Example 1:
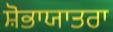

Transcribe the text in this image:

ਸ਼ੋਭਾਯਾਤਰਾ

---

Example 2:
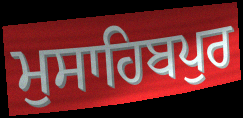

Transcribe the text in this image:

ਮੁਸਾਹਿਬਪੁਰ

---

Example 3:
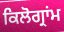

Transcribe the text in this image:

ਕਿਲੋਗ੍ਰਾਂਮ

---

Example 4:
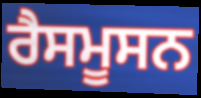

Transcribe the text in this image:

ਰੈਸਮੂਸਨ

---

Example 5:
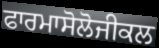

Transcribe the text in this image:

ਫਾਰਮਾਸੋਲੋਜੀਕਲ